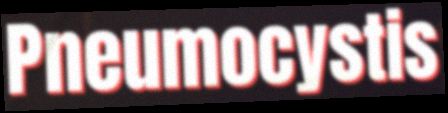
Pneumocystis